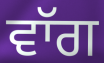
ਵਾੱਗ